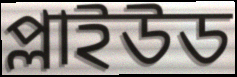
প্লাইউড